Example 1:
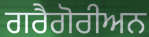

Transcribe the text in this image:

ਗਰੈਗੋਰੀਅਨ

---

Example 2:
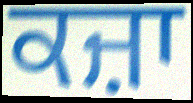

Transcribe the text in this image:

ਕਜ਼ਾ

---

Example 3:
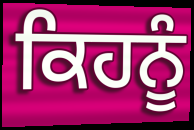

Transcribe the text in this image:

ਕਿਹਨੂੰ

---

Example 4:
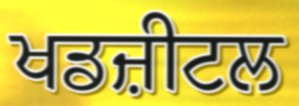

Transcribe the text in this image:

ਖਡਜ਼ੀਟਲ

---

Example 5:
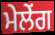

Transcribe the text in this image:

ਮੇਲੇਂਗ